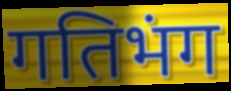
गतिभंग